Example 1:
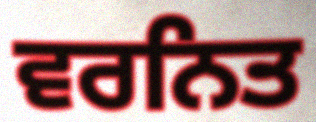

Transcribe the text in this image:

ਵਰਨਿਤ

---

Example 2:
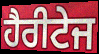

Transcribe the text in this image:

ਹੈਰੀਟੇਜ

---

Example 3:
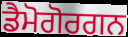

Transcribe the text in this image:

ਡੈਮੋਗੋਰਗਨ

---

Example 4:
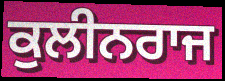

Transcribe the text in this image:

ਕੁਲੀਨਰਾਜ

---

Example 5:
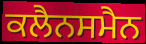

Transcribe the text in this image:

ਕਲੈਨਸਮੈਨ